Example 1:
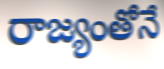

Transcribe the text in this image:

రాజ్యంతోనే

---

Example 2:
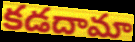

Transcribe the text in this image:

కడదామా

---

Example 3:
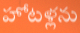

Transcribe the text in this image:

హోటళ్లను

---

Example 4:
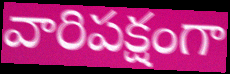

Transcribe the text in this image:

వారిపక్షంగా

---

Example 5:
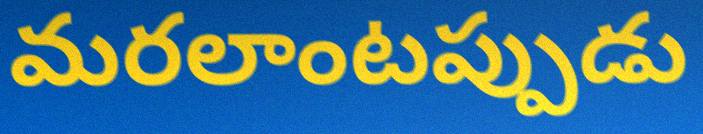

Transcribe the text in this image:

మరలాంటప్పుడు